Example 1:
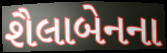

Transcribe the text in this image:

શૈલાબેનના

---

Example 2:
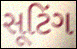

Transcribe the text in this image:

સૂટિંગ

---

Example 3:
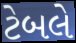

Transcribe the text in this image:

ટેબલે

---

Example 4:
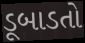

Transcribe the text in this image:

ડૂબાડતો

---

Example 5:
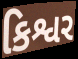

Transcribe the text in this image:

કિશ્વર